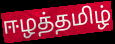
ஈழத்தமிழ்